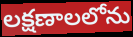
లక్షణాలలోను